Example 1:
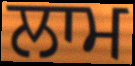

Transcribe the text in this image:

ਲਾਮ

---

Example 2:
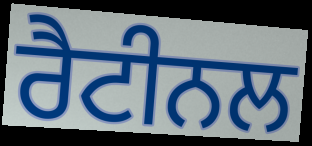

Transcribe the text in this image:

ਰੈਟੀਨਲ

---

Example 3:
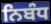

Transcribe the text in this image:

ਨਿਬੰਧ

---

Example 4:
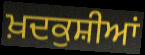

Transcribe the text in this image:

ਖ਼ਦਕੁਸ਼ੀਆਂ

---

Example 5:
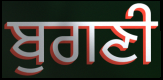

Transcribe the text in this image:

ਬੁਗਣੀ